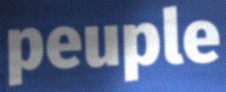
peuple